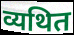
व्यथित